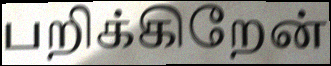
பறிக்கிறேன்